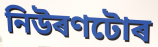
নিউৰণটোৰ